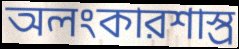
অলংকারশাস্ত্র